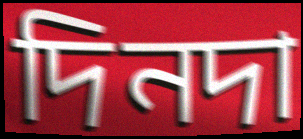
দিনদা